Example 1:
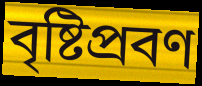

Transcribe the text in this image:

বৃষ্টিপ্রবণ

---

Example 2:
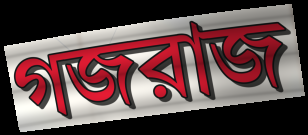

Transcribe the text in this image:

গজরাজ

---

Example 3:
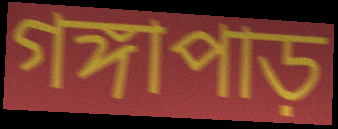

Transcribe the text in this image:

গঙ্গাপাড়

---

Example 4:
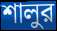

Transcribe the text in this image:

শালুর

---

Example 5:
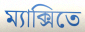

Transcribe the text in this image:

ম্যাক্সিতে